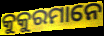
କୁକୁରମାନେ